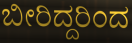
ಬೀರಿದ್ದರಿಂದ